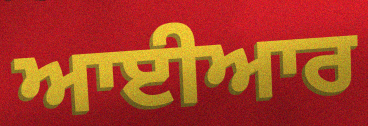
ਆਈਆਰ